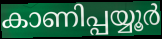
കാണിപ്പയ്യൂർ